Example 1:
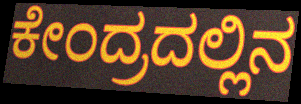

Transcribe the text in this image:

ಕೇಂದ್ರದಲ್ಲಿನ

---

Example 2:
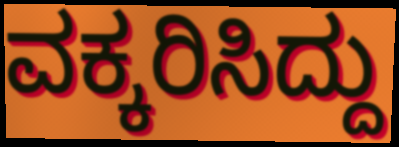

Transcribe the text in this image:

ವಕ್ಕರಿಸಿದ್ದು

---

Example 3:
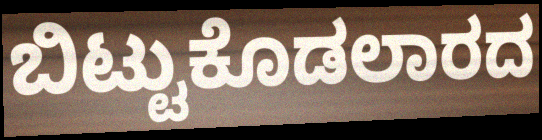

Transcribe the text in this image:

ಬಿಟ್ಟುಕೊಡಲಾರದ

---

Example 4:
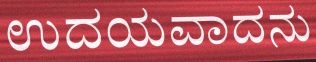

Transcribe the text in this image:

ಉದಯವಾದನು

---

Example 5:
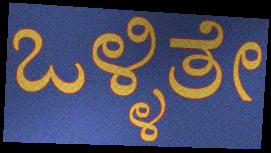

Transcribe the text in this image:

ಒಳ್ಳಿತೇ